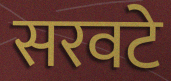
सरवटे